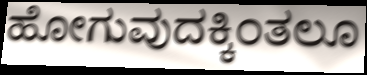
ಹೋಗುವುದಕ್ಕಿಂತಲೂ